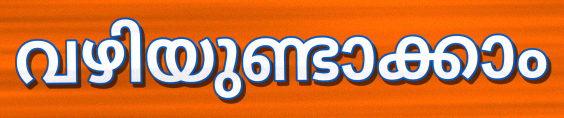
വഴിയുണ്ടാക്കാം